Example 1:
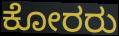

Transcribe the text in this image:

ಕೋರರು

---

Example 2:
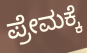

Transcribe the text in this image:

ಪ್ರೇಮಕ್ಕೆ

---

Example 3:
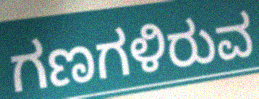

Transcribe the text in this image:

ಗಣಗಳಿರುವ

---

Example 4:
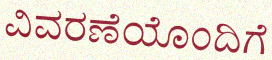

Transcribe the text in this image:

ವಿವರಣೆಯೊಂದಿಗೆ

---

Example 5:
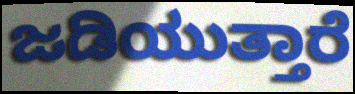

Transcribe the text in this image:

ಜಡಿಯುತ್ತಾರೆ